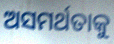
ଅସମର୍ଥତାକୁ